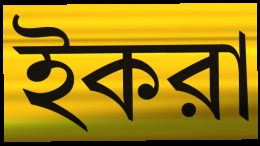
ইকরা